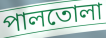
পালতোলা